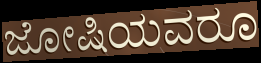
ಜೋಷಿಯವರೂ